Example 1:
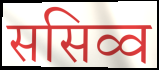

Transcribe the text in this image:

ससिव्व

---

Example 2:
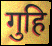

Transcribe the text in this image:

गुहि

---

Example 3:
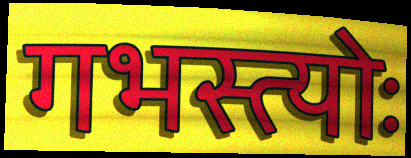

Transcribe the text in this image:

गभस्त्योः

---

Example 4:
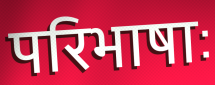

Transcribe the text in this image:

परिभाषाः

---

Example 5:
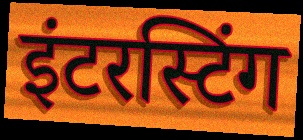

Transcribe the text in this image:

इंटरस्टिंग